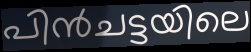
പിൻചട്ടയിലെ